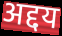
अद्दय